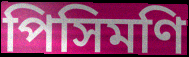
পিসিমণি